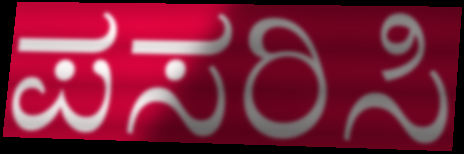
ಪಸರಿಸಿ